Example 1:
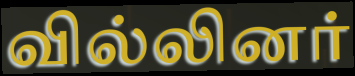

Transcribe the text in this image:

வில்லினர்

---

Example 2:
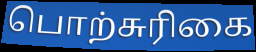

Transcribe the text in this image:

பொற்சுரிகை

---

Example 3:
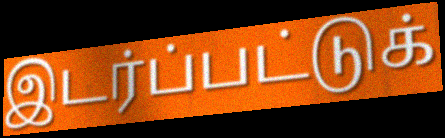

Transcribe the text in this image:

இடர்ப்பட்டுக்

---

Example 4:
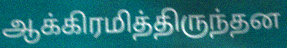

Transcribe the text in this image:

ஆக்கிரமித்திருந்தன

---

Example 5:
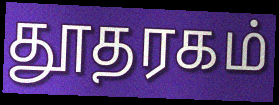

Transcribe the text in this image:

தூதரகம்